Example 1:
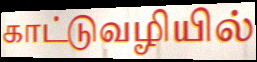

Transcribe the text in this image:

காட்டுவழியில்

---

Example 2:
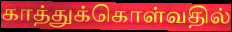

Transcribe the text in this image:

காத்துக்கொள்வதில்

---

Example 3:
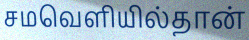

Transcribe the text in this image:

சமவெளியில்தான்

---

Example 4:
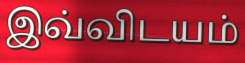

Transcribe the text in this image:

இவ்விடயம்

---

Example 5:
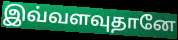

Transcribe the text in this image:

இவ்வளவுதானே